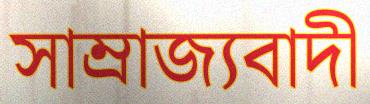
সাম্ৰাজ্যবাদী